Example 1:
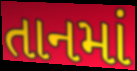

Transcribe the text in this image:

તાનમાં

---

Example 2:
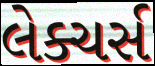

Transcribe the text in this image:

લેક્ચર્સ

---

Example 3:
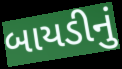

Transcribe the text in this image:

બાયડીનું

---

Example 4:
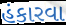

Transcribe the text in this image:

હંકારવા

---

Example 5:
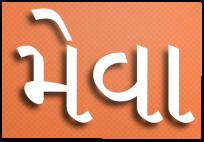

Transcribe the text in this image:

મેવા